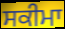
ਸਕੀਮਾ